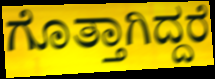
ಗೊತ್ತಾಗಿದ್ದರೆ